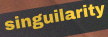
singuilarity